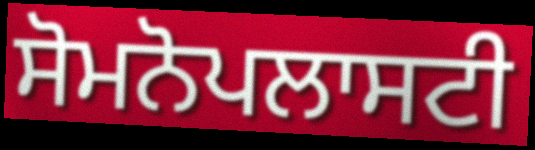
ਸੋਮਨੋਪਲਾਸਟੀ